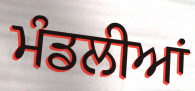
ਮੰਡਲੀਆਂ